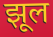
झूल